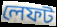
লেফট